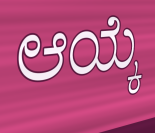
ಆಯ್ಕೆ